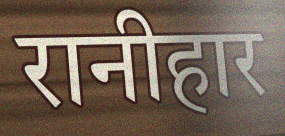
रानीहार